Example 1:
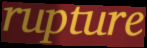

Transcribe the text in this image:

rupture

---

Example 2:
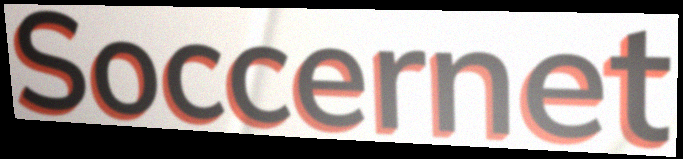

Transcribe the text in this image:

Soccernet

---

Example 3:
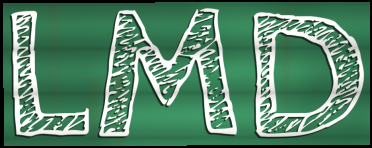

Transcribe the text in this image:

LMD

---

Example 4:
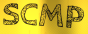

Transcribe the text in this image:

SCMP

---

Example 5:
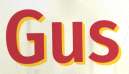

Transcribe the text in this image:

Gus